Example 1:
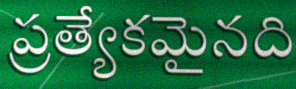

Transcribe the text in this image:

ప్రత్యేకమైనది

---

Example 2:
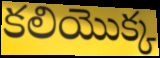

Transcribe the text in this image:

కలియొక్క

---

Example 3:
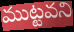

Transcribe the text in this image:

ముట్టవని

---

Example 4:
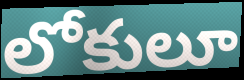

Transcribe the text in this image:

లోకులూ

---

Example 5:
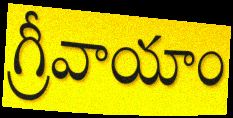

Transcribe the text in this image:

గ్రీవాయాం